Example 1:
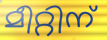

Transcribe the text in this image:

മീറ്റിന്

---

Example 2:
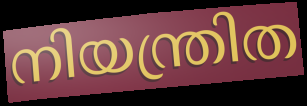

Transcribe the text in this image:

നിയന്ത്രിത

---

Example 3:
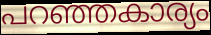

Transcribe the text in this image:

പറഞ്ഞകാര്യം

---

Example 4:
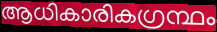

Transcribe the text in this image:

ആധികാരികഗ്രന്ഥം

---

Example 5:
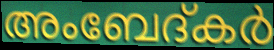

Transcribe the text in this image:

അംബേദ്കർ